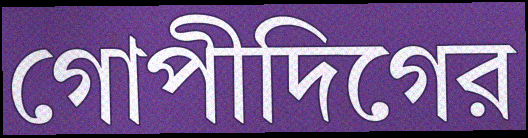
গোপীদিগের